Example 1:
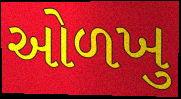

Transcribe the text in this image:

ઓળખુ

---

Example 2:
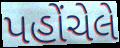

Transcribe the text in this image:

પહોંચેલે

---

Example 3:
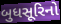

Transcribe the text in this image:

બુધસૂરિનો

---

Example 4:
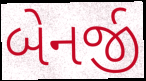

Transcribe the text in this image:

બેનર્જી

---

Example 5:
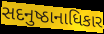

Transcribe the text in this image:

સદનુષ્ઠાનાધિકાર